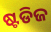
ଷ୍ଟଡିଜ